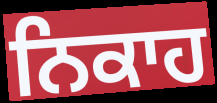
ਨਿਕਾਹ